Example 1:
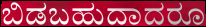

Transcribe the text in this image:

ಬಿಡಬಹುದಾದರೂ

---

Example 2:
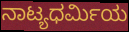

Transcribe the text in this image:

ನಾಟ್ಯಧರ್ಮಿಯ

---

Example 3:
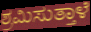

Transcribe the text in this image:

ಶ್ರಮಿಸುತ್ತಾಳೆ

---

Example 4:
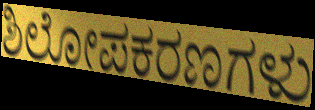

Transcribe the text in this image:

ಶಿಲೋಪಕರಣಗಳು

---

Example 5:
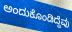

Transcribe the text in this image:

ಅಂದುಕೊಂಡಿದ್ದೆವು